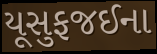
યૂસુફજઈના